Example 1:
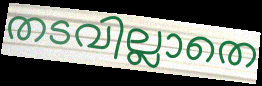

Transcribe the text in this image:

തടവില്ലാതെ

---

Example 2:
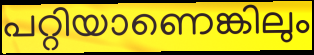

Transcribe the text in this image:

പറ്റിയാണെങ്കിലും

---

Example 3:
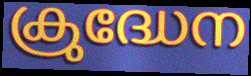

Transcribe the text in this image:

ക്രുദ്ധേന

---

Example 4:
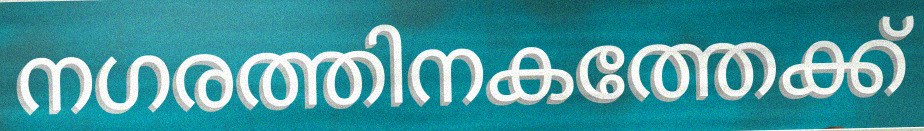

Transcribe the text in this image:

നഗരത്തിനകത്തേക്ക്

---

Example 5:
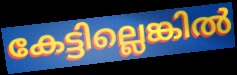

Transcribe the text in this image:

കേട്ടില്ലെങ്കിൽ